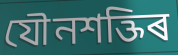
যৌনশক্তিৰ